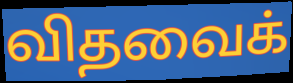
விதவைக்